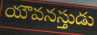
యౌవనస్తుడు